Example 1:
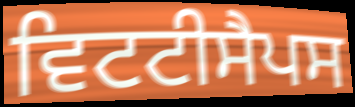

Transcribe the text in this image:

ਵਿਟਟੀਸੈਪਸ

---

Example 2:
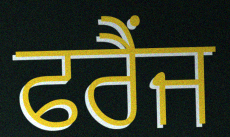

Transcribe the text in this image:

ਫਰੈਂਜ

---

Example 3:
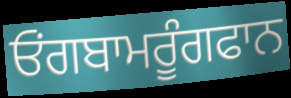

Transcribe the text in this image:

ਓਂਗਬਾਮਰੂੰਗਫਾਨ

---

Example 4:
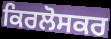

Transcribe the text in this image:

ਕਿਰਲੋਸਕਰ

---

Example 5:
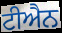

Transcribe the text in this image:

ਟੀਐਨ